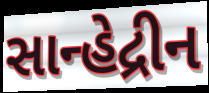
સાન્હેદ્રીન